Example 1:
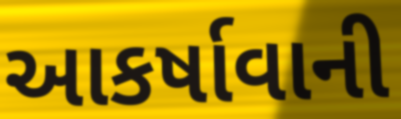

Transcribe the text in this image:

આકર્ષાવાની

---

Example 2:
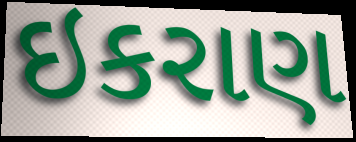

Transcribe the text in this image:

ઇકરાણ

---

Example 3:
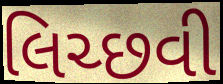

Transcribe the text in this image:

લિચ્છવી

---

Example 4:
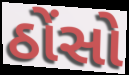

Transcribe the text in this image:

ઠોંસો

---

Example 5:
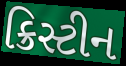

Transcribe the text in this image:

ક્રિસ્ટીન